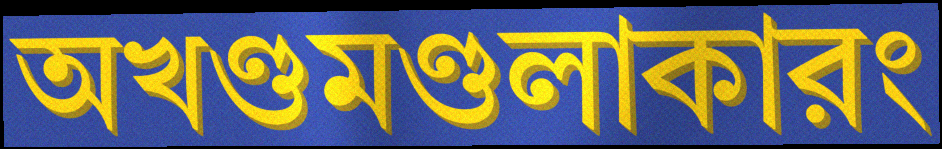
অখণ্ডমণ্ডলাকারং